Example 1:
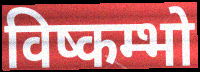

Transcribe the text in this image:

विष्कम्भो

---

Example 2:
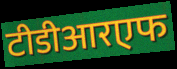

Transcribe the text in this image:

टीडीआरएफ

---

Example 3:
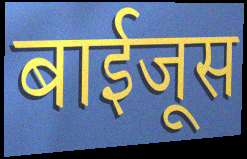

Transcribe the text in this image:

बाईजूस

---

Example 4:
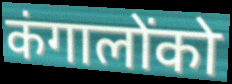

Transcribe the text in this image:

कंगालोंको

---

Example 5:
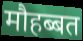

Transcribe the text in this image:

मौहब्बत